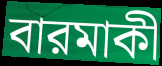
বারমাকী